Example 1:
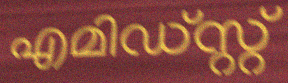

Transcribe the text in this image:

എമിഡ്സ്റ്റ്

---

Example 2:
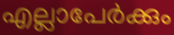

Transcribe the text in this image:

എല്ലാപേർക്കും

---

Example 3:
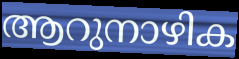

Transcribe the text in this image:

ആറുനാഴിക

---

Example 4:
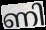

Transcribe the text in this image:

ണി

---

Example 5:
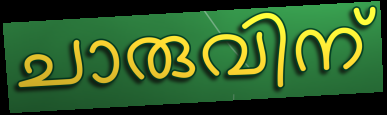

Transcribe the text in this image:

ചാരുവിന്